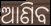
ଆଣିବ